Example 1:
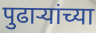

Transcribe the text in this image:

पुढार्‍यांच्या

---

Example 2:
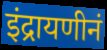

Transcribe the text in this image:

इंद्रायणीनं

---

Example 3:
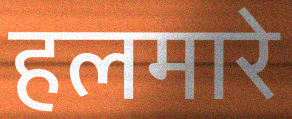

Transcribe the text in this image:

हलमारे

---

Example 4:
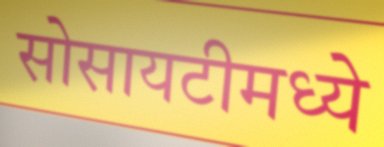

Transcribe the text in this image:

सोसायटीमध्ये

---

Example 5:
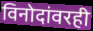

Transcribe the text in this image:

विनोदांवरही